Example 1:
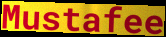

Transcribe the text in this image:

Mustafee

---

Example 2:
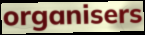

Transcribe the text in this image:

organisers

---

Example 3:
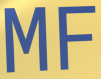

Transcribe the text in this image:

MF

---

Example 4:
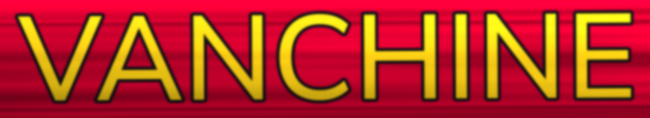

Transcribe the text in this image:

VANCHINE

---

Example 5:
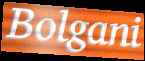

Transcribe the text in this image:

Bolgani